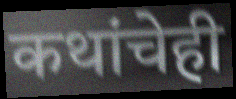
कथांचेही